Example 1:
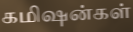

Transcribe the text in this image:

கமிஷன்கள்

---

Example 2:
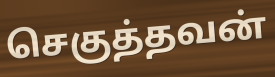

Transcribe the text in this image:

செகுத்தவன்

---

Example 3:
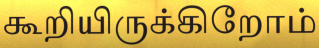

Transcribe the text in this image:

கூறியிருக்கிறோம்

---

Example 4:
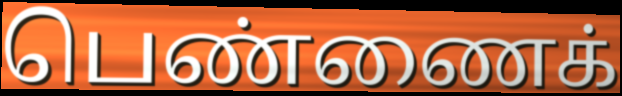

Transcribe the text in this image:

பெண்ணைக்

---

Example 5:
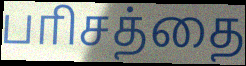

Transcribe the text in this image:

பரிசத்தை